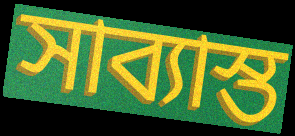
সাব্যাস্ত